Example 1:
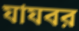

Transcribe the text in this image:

যাযবর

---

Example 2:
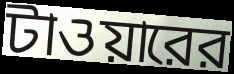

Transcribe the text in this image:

টাওয়ারের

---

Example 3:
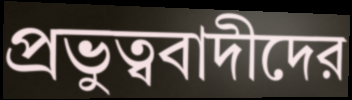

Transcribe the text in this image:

প্রভুত্ববাদীদের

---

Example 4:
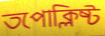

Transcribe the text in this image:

তপোক্লিষ্ট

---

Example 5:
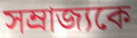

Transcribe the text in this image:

সম্রাজ্যকে